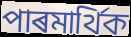
পাৰমাৰ্থিক